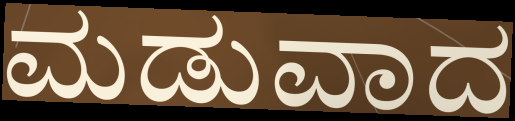
ಮಡುವಾದ